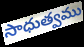
సాధుత్వము